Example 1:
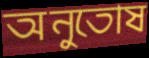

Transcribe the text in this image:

অনুতোষ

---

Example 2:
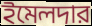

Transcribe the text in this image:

ইমেলদার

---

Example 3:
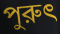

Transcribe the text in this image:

পুরুৎ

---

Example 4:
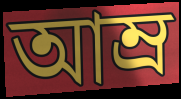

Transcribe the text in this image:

আম্র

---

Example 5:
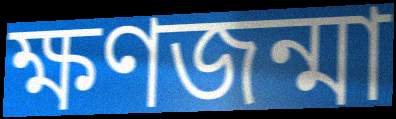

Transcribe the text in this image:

ক্ষণজন্মা